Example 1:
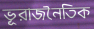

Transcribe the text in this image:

ভূরাজনৈতিক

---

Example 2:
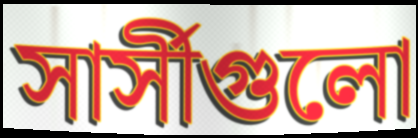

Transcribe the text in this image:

সার্সীগুলো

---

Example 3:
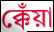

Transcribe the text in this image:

ক্কেঁয়া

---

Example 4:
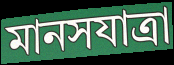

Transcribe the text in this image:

মানসযাত্রা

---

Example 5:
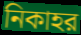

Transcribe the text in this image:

নিকাহর